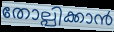
തോല്പിക്കാൻ